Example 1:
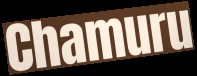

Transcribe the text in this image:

Chamuru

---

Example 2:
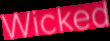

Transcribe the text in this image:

Wicked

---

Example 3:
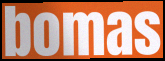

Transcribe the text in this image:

bomas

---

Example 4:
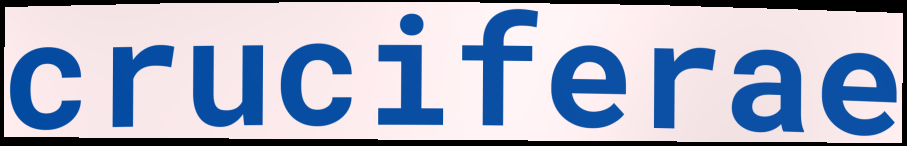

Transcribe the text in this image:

cruciferae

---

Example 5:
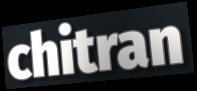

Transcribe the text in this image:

chitran